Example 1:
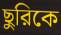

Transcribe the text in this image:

ছুরিকে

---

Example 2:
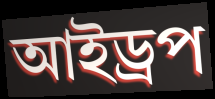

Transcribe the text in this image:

আইড্রপ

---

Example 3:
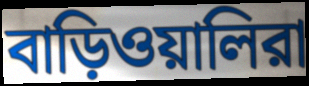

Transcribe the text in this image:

বাড়িওয়ালিরা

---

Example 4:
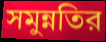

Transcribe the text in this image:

সমুন্নতির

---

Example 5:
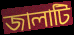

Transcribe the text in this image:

জালাটি